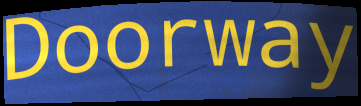
Doorway